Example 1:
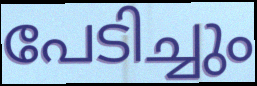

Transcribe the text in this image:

പേടിച്ചും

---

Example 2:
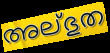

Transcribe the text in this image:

അല്ഭുത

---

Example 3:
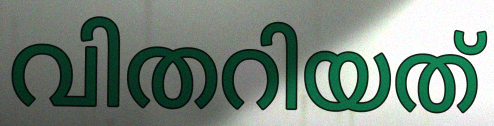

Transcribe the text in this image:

വിതറിയത്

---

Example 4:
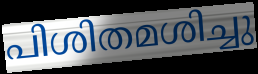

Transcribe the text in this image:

പിശിതമശിച്ചു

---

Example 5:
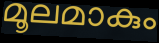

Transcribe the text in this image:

മൂലമാകും